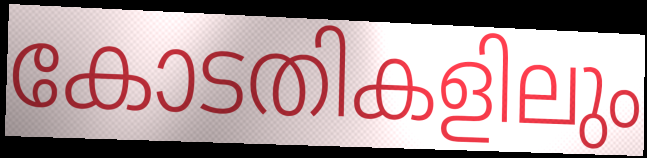
കോടതികളിലും